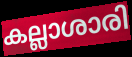
കല്ലാശാരി